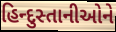
હિન્દુસ્તાનીઓને